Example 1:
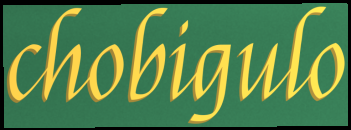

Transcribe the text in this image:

chobigulo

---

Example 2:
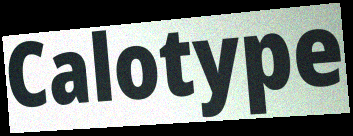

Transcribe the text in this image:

Calotype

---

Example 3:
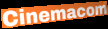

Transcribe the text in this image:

Cinemacom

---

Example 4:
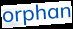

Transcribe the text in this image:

orphan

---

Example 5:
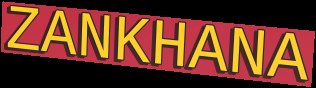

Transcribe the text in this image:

ZANKHANA